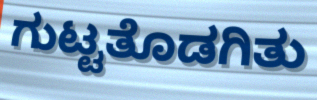
ಗುಟ್ಟತೊಡಗಿತು